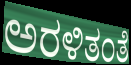
ಅರಳಿತಂತೆ